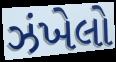
ઝંખેલો